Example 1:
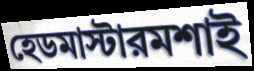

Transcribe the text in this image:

হেডমাস্টারমশাই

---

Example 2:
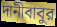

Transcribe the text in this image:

দানীবাবুর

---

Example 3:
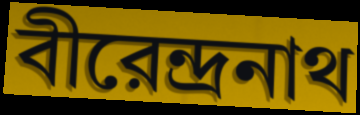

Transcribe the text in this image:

বীরেন্দ্রনাথ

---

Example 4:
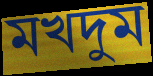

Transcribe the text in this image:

মখদুম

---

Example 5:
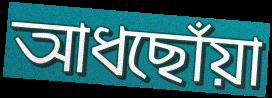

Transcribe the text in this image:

আধছোঁয়া